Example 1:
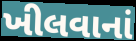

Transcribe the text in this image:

ખીલવાનાં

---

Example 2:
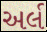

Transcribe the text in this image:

અર્લ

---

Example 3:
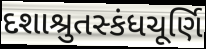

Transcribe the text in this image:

દશાશ્રુતસ્કંધચૂર્ણિ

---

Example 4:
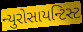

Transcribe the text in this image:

ન્યુરોસાયન્ટિસ્ટ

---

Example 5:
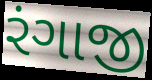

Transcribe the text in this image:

રંગાજી